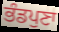
ਭੰਡਪੁਣਾ